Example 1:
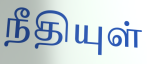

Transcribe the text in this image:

நீதியுள்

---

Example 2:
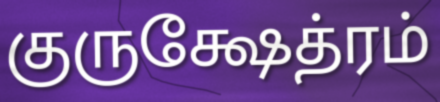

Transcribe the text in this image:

குருக்ஷேத்ரம்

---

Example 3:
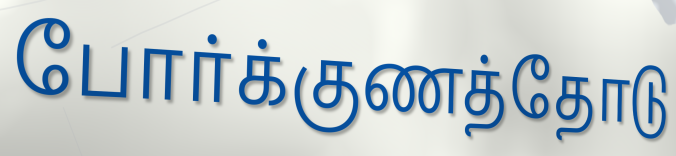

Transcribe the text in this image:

போர்க்குணத்தோடு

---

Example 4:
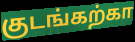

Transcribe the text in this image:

குடங்கற்கா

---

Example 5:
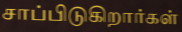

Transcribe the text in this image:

சாப்பிடுகிறார்கள்